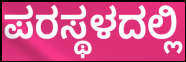
ಪರಸ್ಥಳದಲ್ಲಿ